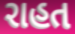
રાહત